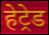
हेट्रेड